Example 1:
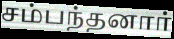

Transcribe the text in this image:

சம்பந்தனார்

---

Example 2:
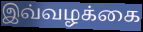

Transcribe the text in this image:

இவ்வழக்கை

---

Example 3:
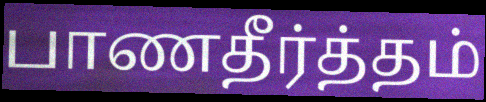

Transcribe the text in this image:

பாணதீர்த்தம்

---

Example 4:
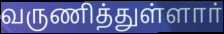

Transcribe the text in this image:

வருணித்துள்ளார்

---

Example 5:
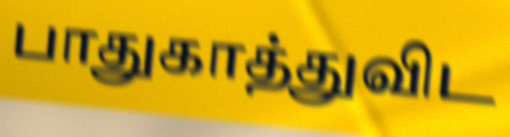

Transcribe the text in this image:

பாதுகாத்துவிட